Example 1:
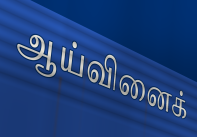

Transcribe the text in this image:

ஆய்வினைக்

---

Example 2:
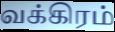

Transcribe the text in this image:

வக்கிரம்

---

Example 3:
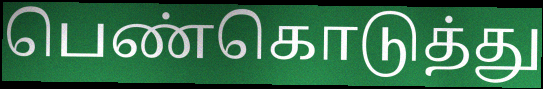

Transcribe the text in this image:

பெண்கொடுத்து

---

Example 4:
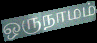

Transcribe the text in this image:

ஒருநாமம்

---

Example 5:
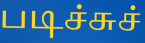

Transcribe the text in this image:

படிச்சுச்